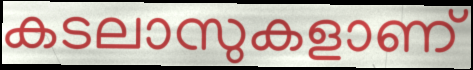
കടലാസുകളാണ്